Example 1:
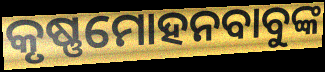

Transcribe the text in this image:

କୃଷ୍ଣମୋହନବାବୁଙ୍କ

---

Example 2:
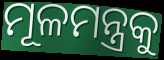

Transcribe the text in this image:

ମୂଳମନ୍ତ୍ରକୁ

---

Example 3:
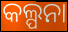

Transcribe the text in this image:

କଲ୍ପନା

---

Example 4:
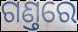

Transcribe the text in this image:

ଗଣ୍ତରେ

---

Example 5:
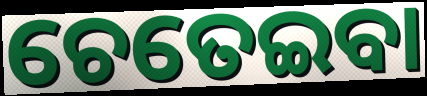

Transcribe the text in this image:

ଚେତେଇବା